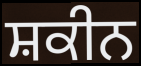
ਸ਼ਕੀਨ